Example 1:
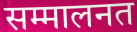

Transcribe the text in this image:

सम्मालनत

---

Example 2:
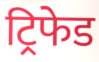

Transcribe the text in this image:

ट्रिफेड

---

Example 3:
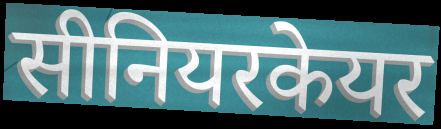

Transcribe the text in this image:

सीनियरकेयर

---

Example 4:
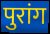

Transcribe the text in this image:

पुरांग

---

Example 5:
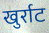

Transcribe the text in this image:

खुर्राट